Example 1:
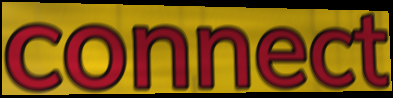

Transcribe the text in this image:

connect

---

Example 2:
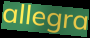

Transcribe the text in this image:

allegra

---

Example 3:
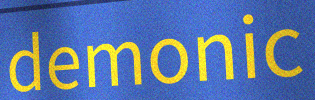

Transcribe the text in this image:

demonic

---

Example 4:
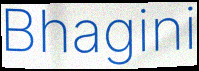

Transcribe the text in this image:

Bhagini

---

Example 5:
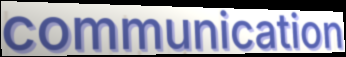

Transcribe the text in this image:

communication